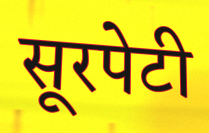
सूरपेटी